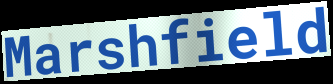
Marshfield